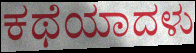
ಕಥೆಯಾದಳು